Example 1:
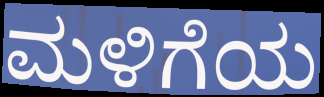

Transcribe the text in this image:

ಮಳಿಗೆಯ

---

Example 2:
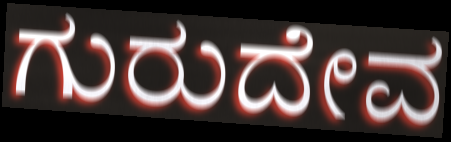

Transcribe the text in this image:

ಗುರುದೇವ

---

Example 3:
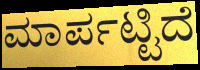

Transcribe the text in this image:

ಮಾರ್ಪಟ್ಟಿದೆ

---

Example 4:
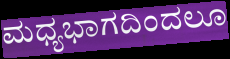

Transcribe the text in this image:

ಮಧ್ಯಭಾಗದಿಂದಲೂ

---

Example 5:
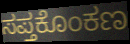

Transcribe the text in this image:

ಸಪ್ತಕೊಂಕಣ